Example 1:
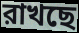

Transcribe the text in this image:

রাখছে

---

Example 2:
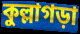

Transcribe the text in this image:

কুল্লাগড়া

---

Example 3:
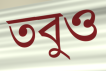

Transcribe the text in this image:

তবুও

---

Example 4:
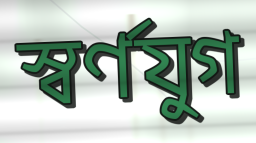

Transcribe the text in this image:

স্বর্ণযুগ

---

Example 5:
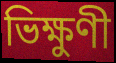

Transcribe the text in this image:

ভিক্ষুণী